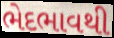
ભેદભાવથી